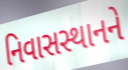
નિવાસસ્થાનને